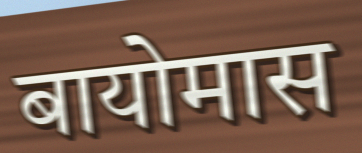
बायोमास